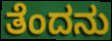
ತೆಂದನು